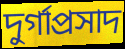
দুৰ্গাপ্ৰসাদ